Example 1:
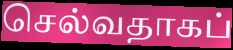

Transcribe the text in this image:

செல்வதாகப்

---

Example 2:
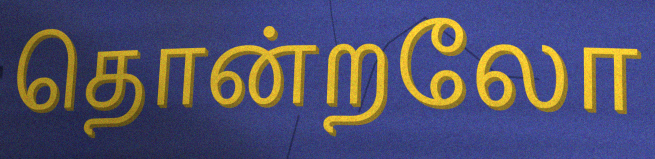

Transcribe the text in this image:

தொன்றலோ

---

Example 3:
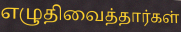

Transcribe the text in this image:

எழுதிவைத்தார்கள்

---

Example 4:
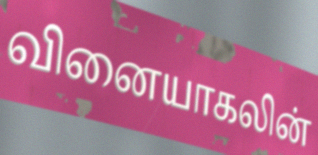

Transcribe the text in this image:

வினையாகலின்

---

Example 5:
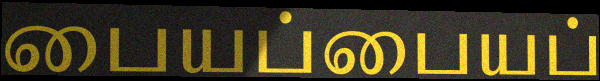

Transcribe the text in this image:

பையப்பையப்